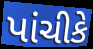
પાંચીકે